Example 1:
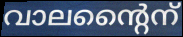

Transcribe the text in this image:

വാലന്റൈന്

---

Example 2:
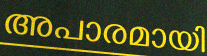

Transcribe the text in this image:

അപാരമായി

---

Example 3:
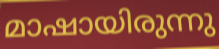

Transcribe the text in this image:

മാഷായിരുന്നു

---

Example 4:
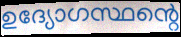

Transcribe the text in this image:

ഉദ്യോഗസ്ഥന്റെ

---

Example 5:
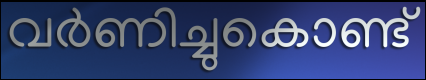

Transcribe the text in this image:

വർണിച്ചുകൊണ്ട്